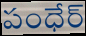
పంధేర్